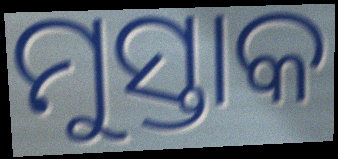
ମୁସ୍ତାକ